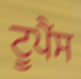
ਟੂਪੈਂਸ